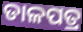
ଡାଳପତ୍ର